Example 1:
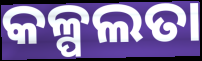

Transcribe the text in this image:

କଳ୍ପଲତା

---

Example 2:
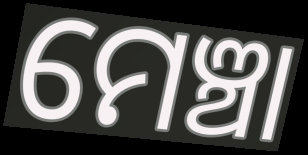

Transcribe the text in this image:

ମେଞ୍ଚା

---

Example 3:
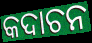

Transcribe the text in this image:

କଦାଚନ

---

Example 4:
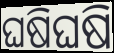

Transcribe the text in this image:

ଘଷିଘଷି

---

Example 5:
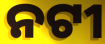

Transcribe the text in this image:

ନଟୀ